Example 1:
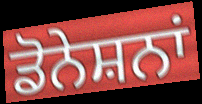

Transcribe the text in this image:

ਡੋਨੇਸ਼ਨਾਂ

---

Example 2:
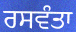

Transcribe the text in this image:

ਰਸਵੰਤਾ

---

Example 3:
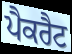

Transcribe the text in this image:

ਪੈਕਰੈਟ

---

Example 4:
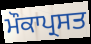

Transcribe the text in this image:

ਮੌਕਾਪ੍ਰਸਤ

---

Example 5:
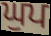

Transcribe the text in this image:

ਘੁਪ